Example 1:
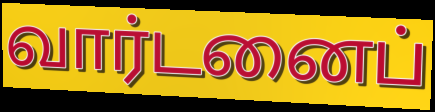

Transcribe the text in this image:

வார்டனைப்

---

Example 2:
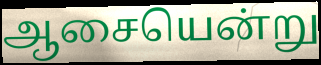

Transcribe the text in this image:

ஆசையென்று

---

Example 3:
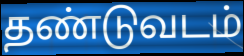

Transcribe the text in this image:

தண்டுவடம்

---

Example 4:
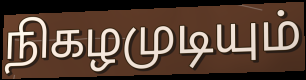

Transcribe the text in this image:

நிகழமுடியும்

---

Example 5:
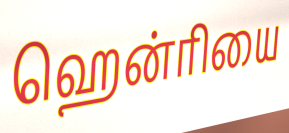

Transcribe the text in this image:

ஹென்ரியை